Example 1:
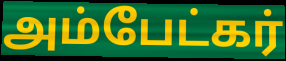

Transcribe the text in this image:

அம்பேட்கர்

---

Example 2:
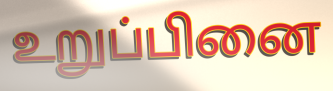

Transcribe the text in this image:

உறுப்பினை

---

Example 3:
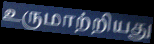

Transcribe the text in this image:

உருமாற்றியது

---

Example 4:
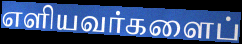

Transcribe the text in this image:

எளியவர்களைப்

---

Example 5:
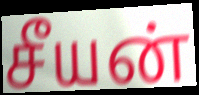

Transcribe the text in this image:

சீயன்